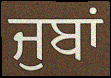
ਜੁਬਾਂ